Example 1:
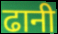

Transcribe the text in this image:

ढानी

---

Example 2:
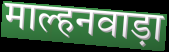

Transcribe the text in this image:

माल्हनवाड़ा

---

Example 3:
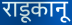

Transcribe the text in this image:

राडूकानू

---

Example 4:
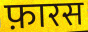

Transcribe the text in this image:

फ़ारस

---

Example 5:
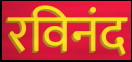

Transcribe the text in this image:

रविनंद